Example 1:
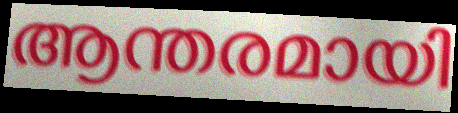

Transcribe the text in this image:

ആന്തരമായി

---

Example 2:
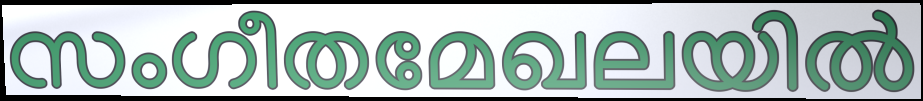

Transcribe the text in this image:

സംഗീതമേഖലയിൽ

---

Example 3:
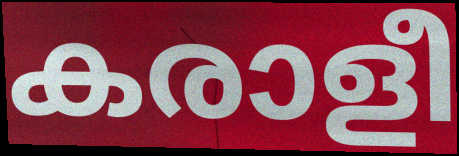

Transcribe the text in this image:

കരാളീ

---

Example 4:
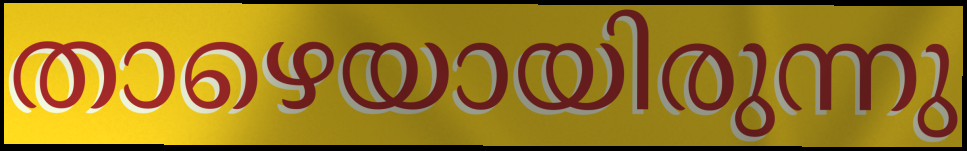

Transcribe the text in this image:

താഴെയായിരുന്നു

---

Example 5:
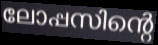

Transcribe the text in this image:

ലോപ്പസിന്റെ